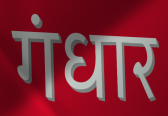
गंधार